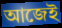
আজেই